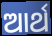
ଆର୍ଥ